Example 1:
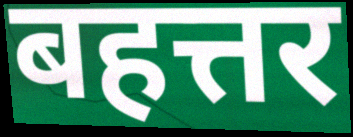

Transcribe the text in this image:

बहत्तर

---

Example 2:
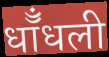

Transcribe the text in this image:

धॉँधली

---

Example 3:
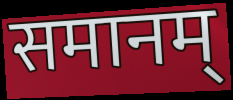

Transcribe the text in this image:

समानम्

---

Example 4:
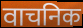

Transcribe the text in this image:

वाचनिक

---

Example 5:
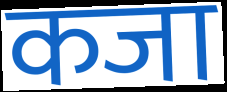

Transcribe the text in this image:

कजा